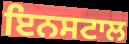
ਇਨਸਟਾਲ